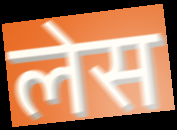
लेस